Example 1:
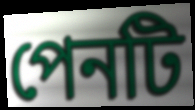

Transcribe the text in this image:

পেনটি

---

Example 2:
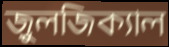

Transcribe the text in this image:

জ়ুলজিক্যাল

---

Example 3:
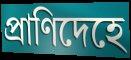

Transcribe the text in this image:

প্রাণিদেহে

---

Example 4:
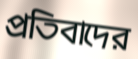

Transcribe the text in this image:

প্রতিবাদের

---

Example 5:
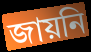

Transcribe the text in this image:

জায়নি